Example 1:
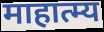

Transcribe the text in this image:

माहात्म्य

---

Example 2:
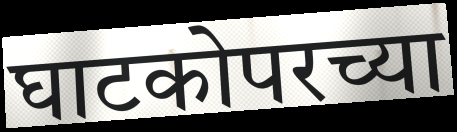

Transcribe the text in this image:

घाटकोपरच्या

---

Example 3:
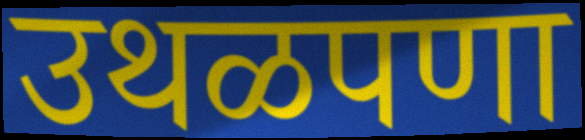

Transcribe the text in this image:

उथळपणा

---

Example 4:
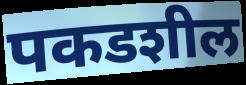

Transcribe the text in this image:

पकडशील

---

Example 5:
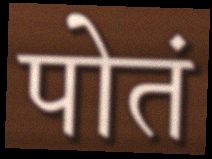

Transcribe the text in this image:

पोतं